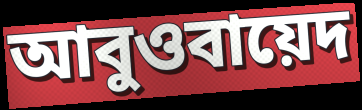
আবুওবায়েদ